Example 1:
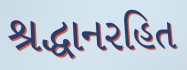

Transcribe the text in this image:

શ્રદ્ધાનરહિત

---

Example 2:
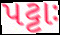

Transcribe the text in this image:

પટ્ટાઃ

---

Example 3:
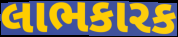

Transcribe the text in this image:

લાભકારક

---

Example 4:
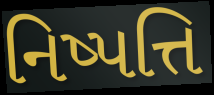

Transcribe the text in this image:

નિષ્પત્તિ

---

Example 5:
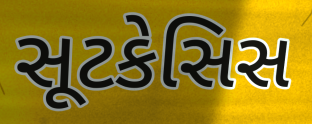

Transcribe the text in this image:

સૂટકેસિસ